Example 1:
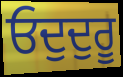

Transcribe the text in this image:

ਓਦੁਦੁਰੂ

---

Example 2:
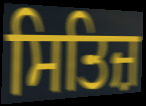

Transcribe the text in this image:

ਸਿਤਿਜ਼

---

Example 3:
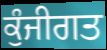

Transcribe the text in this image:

ਕੁੰਜੀਗਤ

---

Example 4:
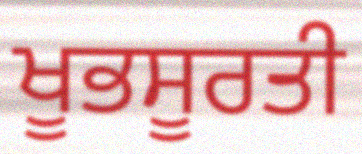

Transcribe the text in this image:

ਖੂਭਸੂਰਤੀ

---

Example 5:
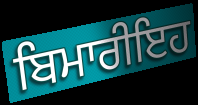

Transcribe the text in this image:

ਬਿਮਾਰੀਇਹ